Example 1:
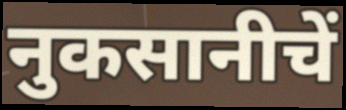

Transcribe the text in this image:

नुकसानीचें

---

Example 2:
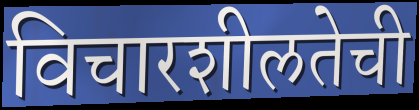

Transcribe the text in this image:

विचारशीलतेची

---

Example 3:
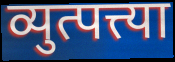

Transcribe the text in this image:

व्युत्पत्त्या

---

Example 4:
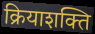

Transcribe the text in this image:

क्रियाशक्ति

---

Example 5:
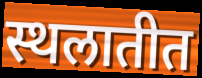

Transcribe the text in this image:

स्थलातीत